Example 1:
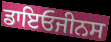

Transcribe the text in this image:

ਡਾਇਓਜੀਨਸ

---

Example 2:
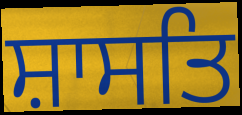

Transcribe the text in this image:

ਸ਼ਾਸਤਿ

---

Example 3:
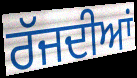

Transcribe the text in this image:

ਰੱਜਦੀਆਂ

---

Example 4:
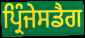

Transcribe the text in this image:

ਪ੍ਰਿੰਜੇਸਡੈਗ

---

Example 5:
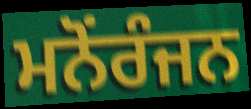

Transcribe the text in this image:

ਮਨੋਂਰੰਜਨ